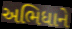
અભિધાને